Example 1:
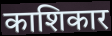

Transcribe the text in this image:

काशिकार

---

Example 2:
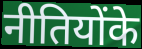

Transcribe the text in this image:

नीतियोंके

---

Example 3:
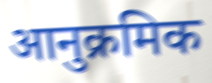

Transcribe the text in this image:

आनुक्रमिक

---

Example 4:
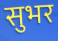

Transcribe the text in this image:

सुभर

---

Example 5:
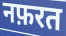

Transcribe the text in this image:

नफ़रत